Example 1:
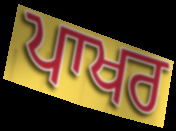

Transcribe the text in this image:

ਪਾਖਰ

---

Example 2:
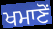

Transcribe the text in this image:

ਖਮਾਣੋਂ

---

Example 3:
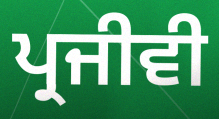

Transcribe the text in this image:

ਪ੍ਰਜੀਵੀ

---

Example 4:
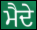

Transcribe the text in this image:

ਮੈਦੇ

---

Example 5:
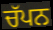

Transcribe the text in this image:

ਚੱਪਨ